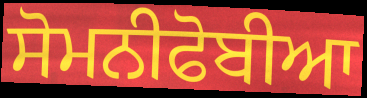
ਸੋਮਨੀਫੋਬੀਆ